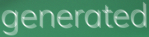
generated